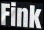
Fink